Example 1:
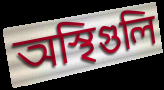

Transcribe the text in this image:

অস্থিগুলি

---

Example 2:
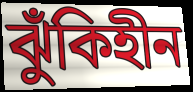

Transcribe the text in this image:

ঝুঁকিহীন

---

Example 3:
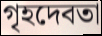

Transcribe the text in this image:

গৃহদেবতা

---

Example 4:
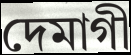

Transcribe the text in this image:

দেমাগী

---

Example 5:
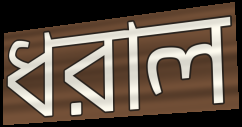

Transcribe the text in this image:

ধরাল